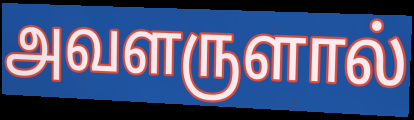
அவளருளால்